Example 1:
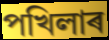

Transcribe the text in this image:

পখিলাৰ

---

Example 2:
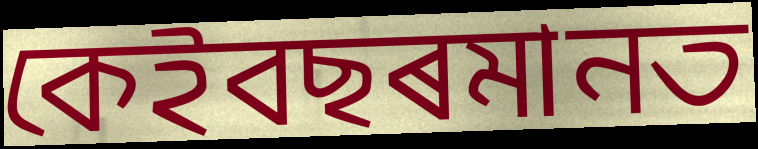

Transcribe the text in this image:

কেইবছৰমানত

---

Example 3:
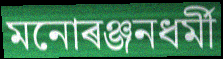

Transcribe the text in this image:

মনোৰঞ্জনধৰ্মী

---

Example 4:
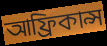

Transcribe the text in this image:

আফ্ৰিকান্স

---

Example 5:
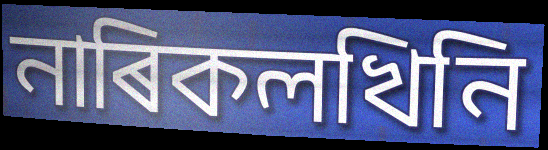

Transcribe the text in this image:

নাৰিকলখিনি